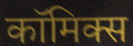
कॉमिक्स